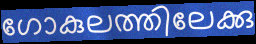
ഗോകുലത്തിലേക്കു